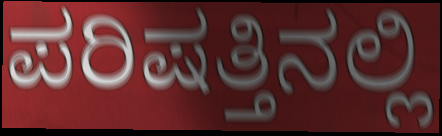
ಪರಿಷತ್ತಿನಲ್ಲಿ